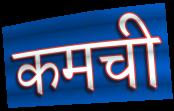
कमची